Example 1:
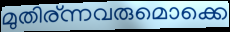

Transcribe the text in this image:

മുതിര്ന്നവരുമൊക്കെ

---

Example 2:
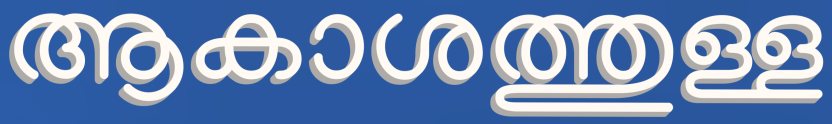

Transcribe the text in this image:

ആകാശത്തുള്ള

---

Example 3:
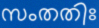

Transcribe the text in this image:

സംതതിഃ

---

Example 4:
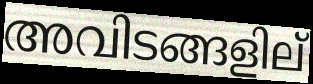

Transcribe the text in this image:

അവിടങ്ങളില്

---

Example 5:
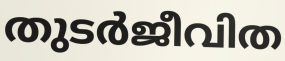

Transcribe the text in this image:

തുടർജീവിത